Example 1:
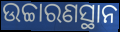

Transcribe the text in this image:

ଉଚ୍ଚାରଣସ୍ଥାନ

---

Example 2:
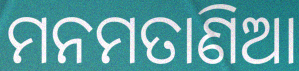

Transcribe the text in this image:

ମନମତାଣିଆ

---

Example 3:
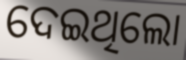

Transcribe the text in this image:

ଦେଇଥିଲୋ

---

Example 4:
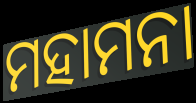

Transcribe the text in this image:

ମହାମନା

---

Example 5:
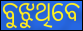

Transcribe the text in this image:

ବୁଝୁଥିବେ